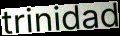
trinidad